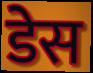
डेस